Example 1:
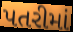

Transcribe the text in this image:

પતરીમાં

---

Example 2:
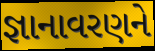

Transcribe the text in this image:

જ્ઞાનાવરણને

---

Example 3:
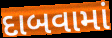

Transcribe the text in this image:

દાબવામાં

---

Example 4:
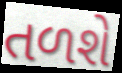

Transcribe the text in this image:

તળશે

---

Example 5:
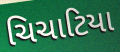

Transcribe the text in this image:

ચિચાટિયા